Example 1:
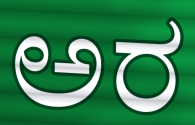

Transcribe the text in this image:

ಅರ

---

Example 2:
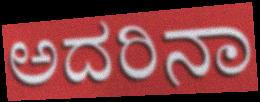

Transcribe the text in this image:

ಅದರಿನಾ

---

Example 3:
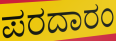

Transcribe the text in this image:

ಪರದಾರಂ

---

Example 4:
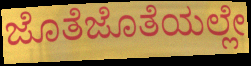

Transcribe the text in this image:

ಜೊತೆಜೊತೆಯಲ್ಲೇ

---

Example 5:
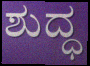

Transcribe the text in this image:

ಶುದ್ಧ